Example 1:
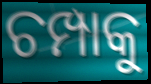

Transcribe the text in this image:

ଚମ୍ପାକୁ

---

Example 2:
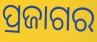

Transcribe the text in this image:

ପ୍ରଜାଗର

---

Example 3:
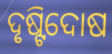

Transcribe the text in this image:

ଦୃଷ୍ଟିଦୋଷ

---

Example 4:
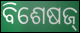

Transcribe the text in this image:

ବିଶେଷଜ୍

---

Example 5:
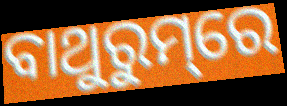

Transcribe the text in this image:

ବାଥୁରୁମ୍‌ରେ